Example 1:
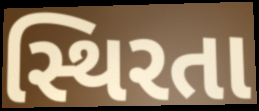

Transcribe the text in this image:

સ્થિરતા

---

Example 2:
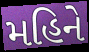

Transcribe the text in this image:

મહિને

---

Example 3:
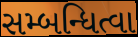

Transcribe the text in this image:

સમ્બન્ધિત્વા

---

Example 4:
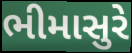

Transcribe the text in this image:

ભીમાસુરે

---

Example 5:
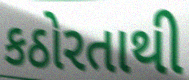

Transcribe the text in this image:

કઠોરતાથી